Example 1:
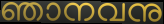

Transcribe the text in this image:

ഞാനവനു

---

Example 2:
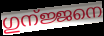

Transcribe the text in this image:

ഗുന്ജ്ജനെ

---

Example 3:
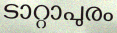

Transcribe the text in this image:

ടാറ്റാപുരം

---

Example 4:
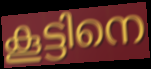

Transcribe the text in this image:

കൂട്ടിനെ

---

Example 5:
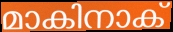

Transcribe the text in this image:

മാകിനാക്